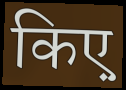
किए़